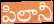
పిలానీ